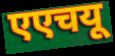
एएचयू